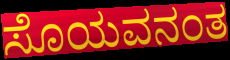
ಸೊಯವನಂತ